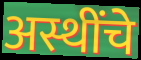
अस्थींचे